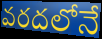
వరదలోనే